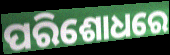
ପରିଶୋଧରେ